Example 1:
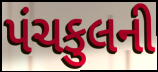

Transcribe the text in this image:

પંચકુલની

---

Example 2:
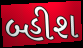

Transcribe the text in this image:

બ્હીશ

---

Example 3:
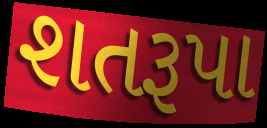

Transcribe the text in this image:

શતરૂપા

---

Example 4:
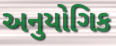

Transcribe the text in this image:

અનુયોગિક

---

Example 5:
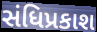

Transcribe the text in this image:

સંધિપ્રકાશ